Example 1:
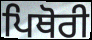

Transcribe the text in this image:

ਪਿਥੋਰੀ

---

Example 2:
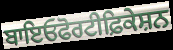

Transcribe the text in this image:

ਬਾਇਓਫੋਰਟੀਫ਼ਿਕੇਸ਼ਨ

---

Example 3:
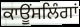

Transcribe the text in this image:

ਕਾਊਂਸਲਿੰਗਾਂ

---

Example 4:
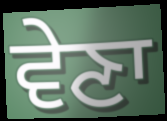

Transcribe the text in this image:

ਵੇਣਾ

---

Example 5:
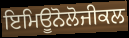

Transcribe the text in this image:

ਇਮਿਊਨੋਲੋਜੀਕਲ